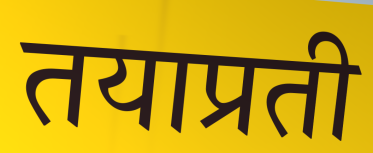
तयाप्रती